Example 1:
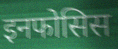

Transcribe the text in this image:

इनफोसिस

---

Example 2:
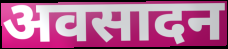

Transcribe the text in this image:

अवसादन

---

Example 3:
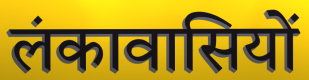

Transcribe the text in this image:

लंकावासियों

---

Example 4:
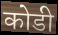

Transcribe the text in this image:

कोडी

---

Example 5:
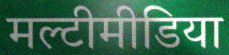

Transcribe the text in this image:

मल्टीमीडिया